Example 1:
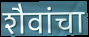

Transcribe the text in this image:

शैवांचा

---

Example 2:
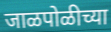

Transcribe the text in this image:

जाळपोळीच्या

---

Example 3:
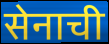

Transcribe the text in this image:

सेनाची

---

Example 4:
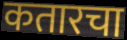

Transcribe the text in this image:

कतारचा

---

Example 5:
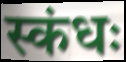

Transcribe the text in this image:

स्कंधः